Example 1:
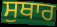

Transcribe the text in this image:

ਸੁਥਾਰ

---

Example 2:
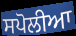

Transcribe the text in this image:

ਸਪੋਲੀਆ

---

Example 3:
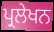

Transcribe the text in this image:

ਪ੍ਰਲੇਖਨ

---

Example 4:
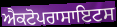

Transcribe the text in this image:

ਐਕਟੋਪਰਾਸਾਇਟਸ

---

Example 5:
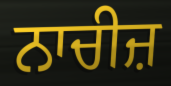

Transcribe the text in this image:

ਨਾਚੀਜ਼